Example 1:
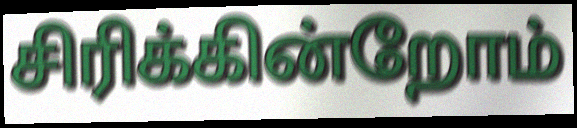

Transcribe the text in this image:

சிரிக்கின்றோம்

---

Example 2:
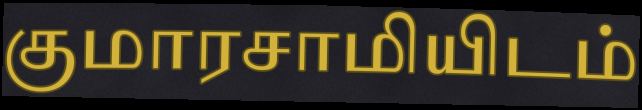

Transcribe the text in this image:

குமாரசாமியிடம்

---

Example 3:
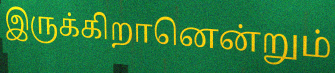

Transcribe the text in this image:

இருக்கிறானென்றும்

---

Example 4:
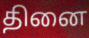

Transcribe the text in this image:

தினை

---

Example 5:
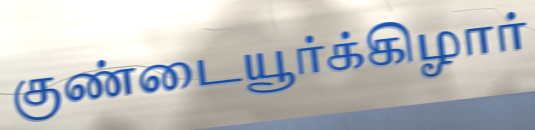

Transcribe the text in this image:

குண்டையூர்க்கிழார்